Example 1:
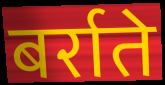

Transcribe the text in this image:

बर्राते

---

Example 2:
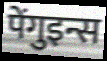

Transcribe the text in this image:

पेंगुइन्स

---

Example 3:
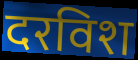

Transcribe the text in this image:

दरविश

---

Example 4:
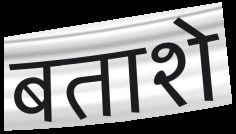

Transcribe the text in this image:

बताशे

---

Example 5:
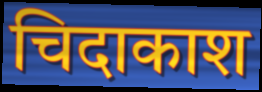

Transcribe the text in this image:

चिदाकाश